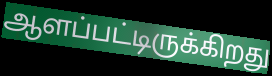
ஆளப்பட்டிருக்கிறது